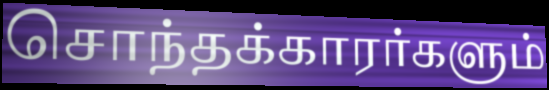
சொந்தக்காரர்களும்